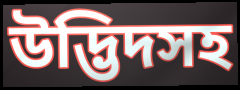
উদ্ভিদসহ